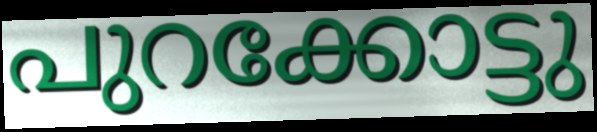
പുറക്കോട്ടു